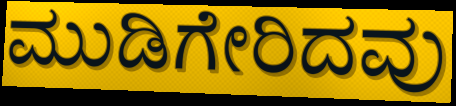
ಮುಡಿಗೇರಿದವು